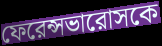
ফেরেন্সভারোসকে